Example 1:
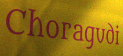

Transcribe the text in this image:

Choragudi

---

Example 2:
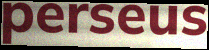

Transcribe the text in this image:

perseus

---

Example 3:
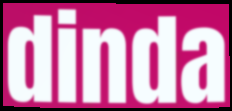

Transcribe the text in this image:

dinda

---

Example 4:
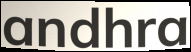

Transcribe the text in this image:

andhra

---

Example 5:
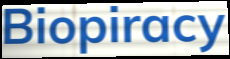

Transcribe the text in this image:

Biopiracy